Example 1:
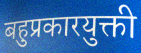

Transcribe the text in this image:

बहुप्रकारयुक्ती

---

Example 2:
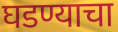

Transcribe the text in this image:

घडण्याचा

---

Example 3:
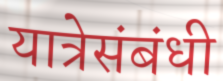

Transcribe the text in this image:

यात्रेसंबंधी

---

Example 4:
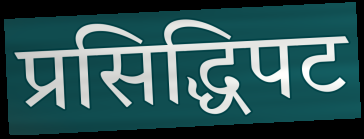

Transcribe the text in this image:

प्रसिद्धिपट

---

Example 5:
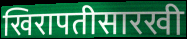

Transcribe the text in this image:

खिरापतीसारखी